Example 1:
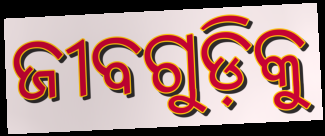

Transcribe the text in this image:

ଜୀବଗୁଡ଼ିକୁ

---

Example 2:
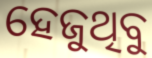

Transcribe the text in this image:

ହେଜୁଥିବୁ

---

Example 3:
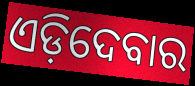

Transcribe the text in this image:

ଏଡ଼ିଦେବାର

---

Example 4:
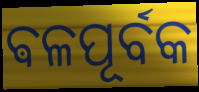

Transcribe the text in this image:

ଵଳପୂର୍ବକ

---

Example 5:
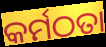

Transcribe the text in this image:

କର୍ମଠତା